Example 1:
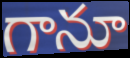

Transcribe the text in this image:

గానూ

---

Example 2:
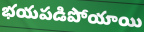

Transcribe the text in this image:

భయపడిపోయాయి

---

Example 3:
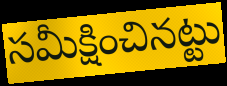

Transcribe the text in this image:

సమీక్షించినట్టు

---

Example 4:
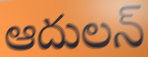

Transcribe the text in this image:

ఆదులన్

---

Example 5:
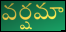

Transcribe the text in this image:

వర్షమా